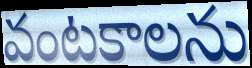
వంటకాలను